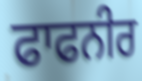
ਫਾਫਨੀਰ